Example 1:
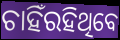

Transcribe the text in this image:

ଚାହିଁରହିଥିବେ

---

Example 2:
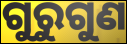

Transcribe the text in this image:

ଗୁରୁଗୁଣ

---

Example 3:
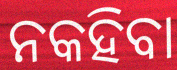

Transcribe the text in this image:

ନକହିବା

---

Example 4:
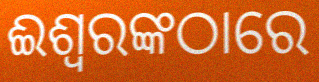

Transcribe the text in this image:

ଈଶ୍ୱରଙ୍କଠାରେ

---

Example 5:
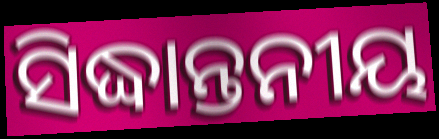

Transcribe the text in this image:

ସିଦ୍ଧାନ୍ତନୀୟ